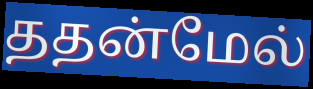
ததன்மேல்